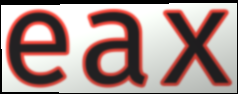
eax